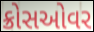
ક્રોસઓવર